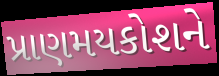
પ્રાણમયકોશને